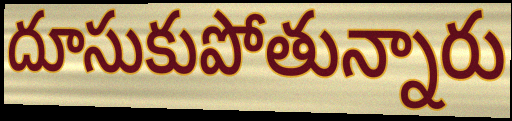
దూసుకుపోతున్నారు